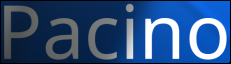
Pacino